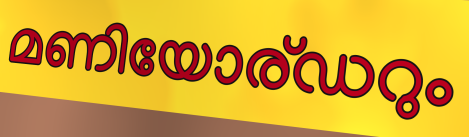
മണിയോര്ഡറും